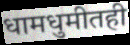
धामधुमीतही